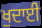
ਖੁਦਾਈ